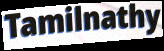
Tamilnathy